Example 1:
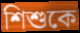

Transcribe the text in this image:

শিশুকে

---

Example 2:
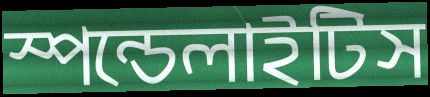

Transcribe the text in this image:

স্পন্ডেলাইটিস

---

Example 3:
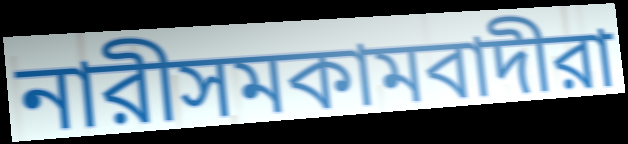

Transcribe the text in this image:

নারীসমকামবাদীরা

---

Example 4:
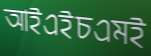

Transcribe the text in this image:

আইএইচএমই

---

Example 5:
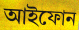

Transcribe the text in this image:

আইফোন